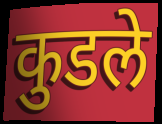
कुडले